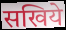
सखिये